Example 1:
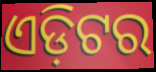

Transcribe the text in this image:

ଏଡ଼ିଟର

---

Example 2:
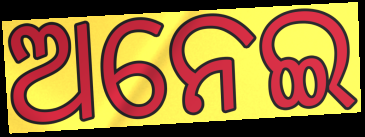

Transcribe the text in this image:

ଅନେଇ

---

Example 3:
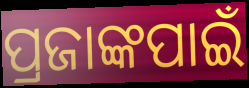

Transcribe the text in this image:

ପ୍ରଜାଙ୍କପାଇଁ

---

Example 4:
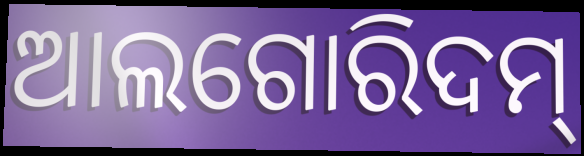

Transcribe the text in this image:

ଆଲଗୋରିଦମ୍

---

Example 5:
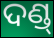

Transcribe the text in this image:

ଦଣ୍ଡ୍